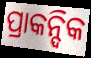
ପ୍ରାକନ୍ଦିକ